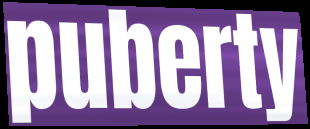
puberty